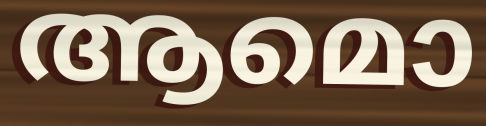
ആമൊ